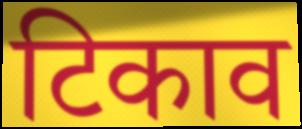
टिकाव